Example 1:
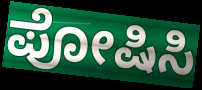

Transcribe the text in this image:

ಪೋಷಿಸಿ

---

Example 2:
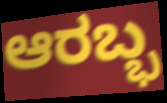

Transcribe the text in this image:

ಆರಬ್ಭ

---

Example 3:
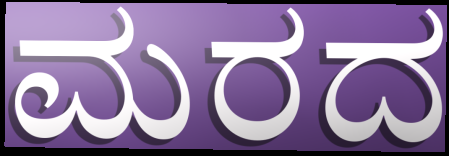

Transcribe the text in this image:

ಮರದ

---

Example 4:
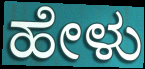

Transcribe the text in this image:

ಹೇಳು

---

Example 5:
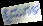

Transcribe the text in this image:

ಕೈದುಗಳ